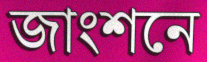
জাংশনে